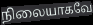
நிலையாகவே